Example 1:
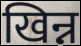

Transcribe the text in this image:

खिन्न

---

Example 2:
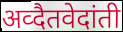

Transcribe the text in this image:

अव्दैतवेदांती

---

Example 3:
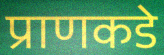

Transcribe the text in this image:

प्राणकडे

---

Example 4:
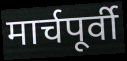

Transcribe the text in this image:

मार्चपूर्वी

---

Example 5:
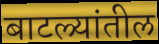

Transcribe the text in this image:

बाटल्यांतील